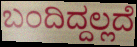
ಬಂದಿದ್ದಲ್ಲದೆ